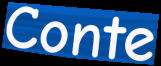
Conte